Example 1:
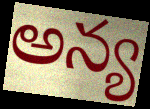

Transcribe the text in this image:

అన్య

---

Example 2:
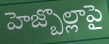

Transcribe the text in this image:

హెజ్బొల్లాపై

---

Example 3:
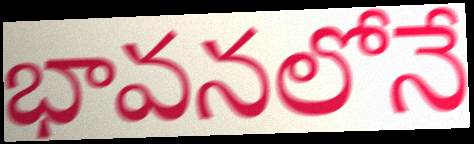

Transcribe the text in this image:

భావనలోనే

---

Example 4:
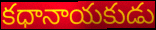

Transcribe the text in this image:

కధానాయకుడు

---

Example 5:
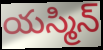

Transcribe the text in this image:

యస్మిన్